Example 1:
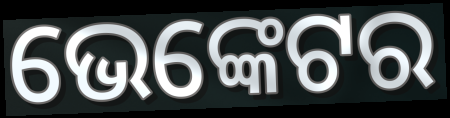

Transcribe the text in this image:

ଭେଙ୍କେଟର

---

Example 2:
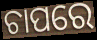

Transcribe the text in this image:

ଚାପରେ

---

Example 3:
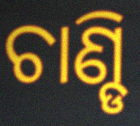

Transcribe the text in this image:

ଚାଣ୍ଡି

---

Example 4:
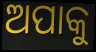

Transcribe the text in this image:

ଅପାକୁ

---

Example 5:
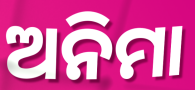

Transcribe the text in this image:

ଅନିମା